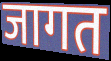
जागत